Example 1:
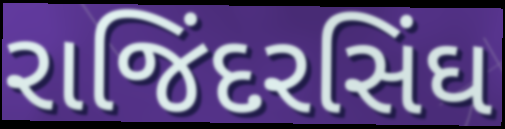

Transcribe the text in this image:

રાજિંદરસિંઘ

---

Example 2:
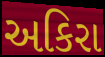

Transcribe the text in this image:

અકિરા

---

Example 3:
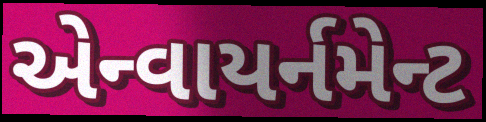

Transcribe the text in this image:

એન્વાયર્નમેન્ટ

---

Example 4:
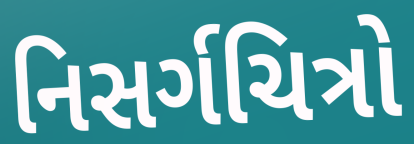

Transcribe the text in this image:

નિસર્ગચિત્રો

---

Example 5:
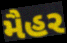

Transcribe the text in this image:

મૈહર